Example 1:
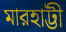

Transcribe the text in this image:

মারহাট্টী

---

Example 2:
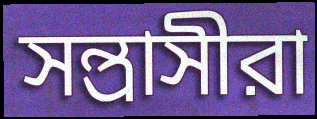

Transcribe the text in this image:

সন্ত্রাসীরা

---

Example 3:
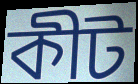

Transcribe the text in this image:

কীট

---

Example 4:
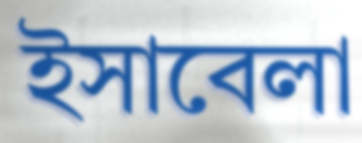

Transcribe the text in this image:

ইসাবেলা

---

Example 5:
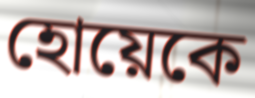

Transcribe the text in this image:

হোয়েকে